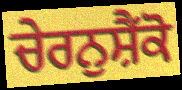
ਚੇਰਨੁਸ਼ੈਂਕੋ